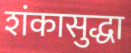
शंकासुद्धा